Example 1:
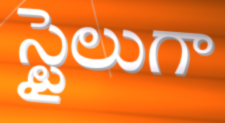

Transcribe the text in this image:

స్టైలుగా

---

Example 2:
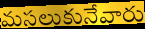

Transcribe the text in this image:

మసలుకునేవారు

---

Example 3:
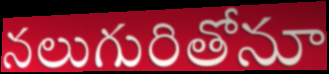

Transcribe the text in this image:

నలుగురితోనూ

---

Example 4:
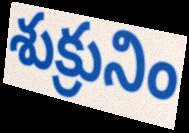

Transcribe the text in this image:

శుక్రునిం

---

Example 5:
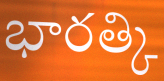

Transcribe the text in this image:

భారత్కి